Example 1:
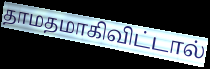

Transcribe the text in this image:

தாமதமாகிவிட்டால்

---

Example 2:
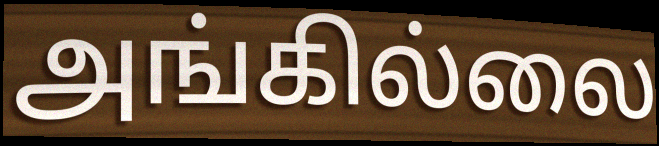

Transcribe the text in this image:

அங்கில்லை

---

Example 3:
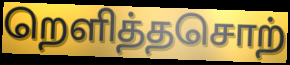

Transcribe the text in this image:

றெளித்தசொற்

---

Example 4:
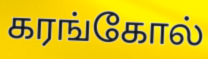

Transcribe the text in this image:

கரங்கோல்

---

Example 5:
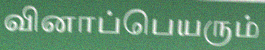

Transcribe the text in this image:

வினாப்பெயரும்